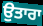
ਉਤਾਰਾ